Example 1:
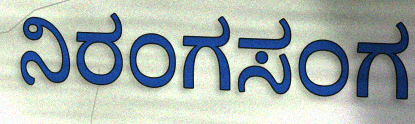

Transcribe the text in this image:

ನಿರಂಗಸಂಗ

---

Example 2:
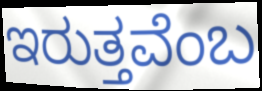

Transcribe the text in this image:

ಇರುತ್ತವೆಂಬ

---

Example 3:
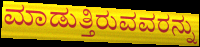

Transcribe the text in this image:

ಮಾಡುತ್ತಿರುವವರನ್ನು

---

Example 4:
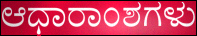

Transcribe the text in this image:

ಆಧಾರಾಂಶಗಳು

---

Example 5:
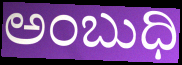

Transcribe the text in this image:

ಅಂಬುಧಿ